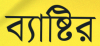
ব্যাষ্টির